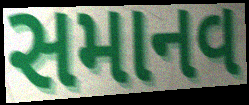
સમાનવ